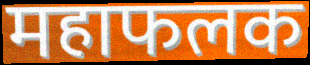
महाफलक